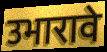
उभारावे